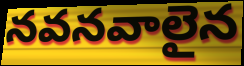
నవనవాలైన